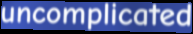
uncomplicated